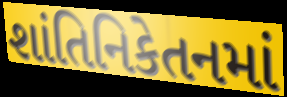
શાંતિનિકેતનમાં